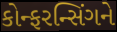
કોન્ફરન્સિંગને